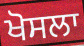
ਖੋਸਲਾ